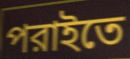
পরাইতে